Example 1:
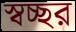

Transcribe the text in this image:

স্বচ্ছর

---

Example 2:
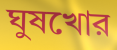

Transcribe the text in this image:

ঘুষখোর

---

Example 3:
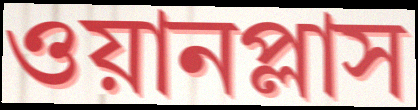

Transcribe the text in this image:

ওয়ানপ্লাস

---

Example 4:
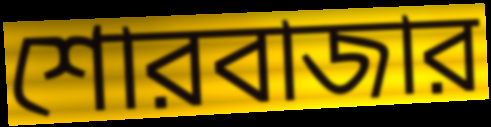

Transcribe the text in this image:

শোরবাজার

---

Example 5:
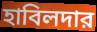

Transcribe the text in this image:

হাবিলদার